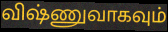
விஷ்ணுவாகவும்